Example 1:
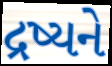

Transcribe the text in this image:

દ્રષ્યને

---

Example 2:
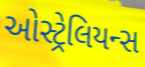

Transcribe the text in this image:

ઓસ્ટ્રેલિયન્સ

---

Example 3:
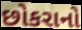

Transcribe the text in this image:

છોકરાનો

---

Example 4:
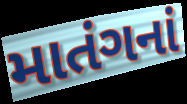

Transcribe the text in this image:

માતંગનાં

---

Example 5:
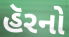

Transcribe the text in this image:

હૅરનો